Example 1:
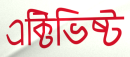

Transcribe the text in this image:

এক্টিভিষ্ট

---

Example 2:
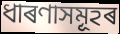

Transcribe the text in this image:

ধাৰণাসমূহৰ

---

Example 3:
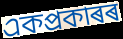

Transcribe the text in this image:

একপ্ৰকাৰৰ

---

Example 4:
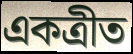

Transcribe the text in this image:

একত্ৰীত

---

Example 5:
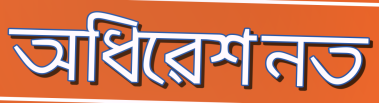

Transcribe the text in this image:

অধিৱেশনত